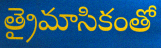
త్రైమాసికంతో